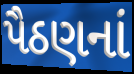
પૈઠણનાં